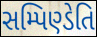
સમ્પિણ્ડેતિ